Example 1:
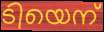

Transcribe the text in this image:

ടിയെന്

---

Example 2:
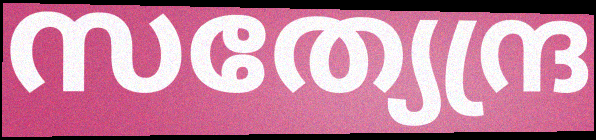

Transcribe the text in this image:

സത്യേന്ദ്ര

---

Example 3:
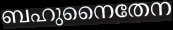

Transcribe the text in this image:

ബഹുനൈതേന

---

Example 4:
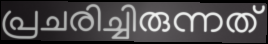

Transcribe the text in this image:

പ്രചരിച്ചിരുന്നത്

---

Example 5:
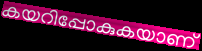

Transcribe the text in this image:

കയറിപ്പോകുകയാണ്